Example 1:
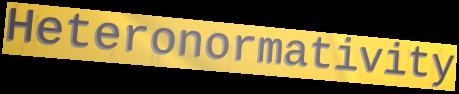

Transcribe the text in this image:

Heteronormativity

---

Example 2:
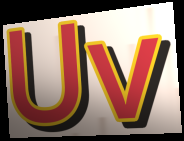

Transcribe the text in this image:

Uv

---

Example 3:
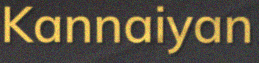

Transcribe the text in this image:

Kannaiyan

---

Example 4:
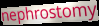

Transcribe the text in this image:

nephrostomy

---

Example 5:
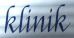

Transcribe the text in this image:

klinik